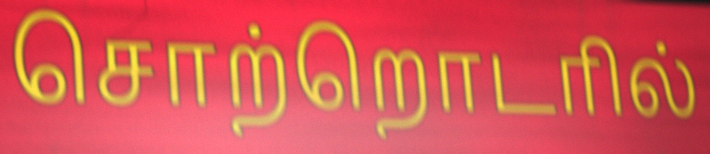
சொற்றொடரில்